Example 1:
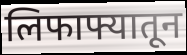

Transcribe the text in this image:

लिफाफ्यातून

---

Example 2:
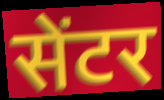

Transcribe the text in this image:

सेंटर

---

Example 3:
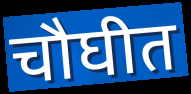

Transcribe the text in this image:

चौघीत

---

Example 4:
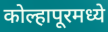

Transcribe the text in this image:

कोल्हापूरमध्ये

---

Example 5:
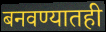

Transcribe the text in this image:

बनवण्यातही